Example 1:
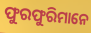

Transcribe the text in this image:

ଫୁରଫୁରିମାନେ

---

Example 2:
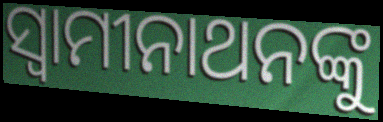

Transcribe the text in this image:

ସ୍ୱାମୀନାଥନଙ୍କୁ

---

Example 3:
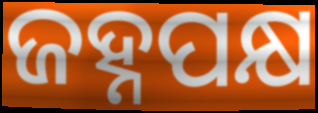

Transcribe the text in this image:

ଜହ୍ନପକ୍ଷ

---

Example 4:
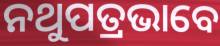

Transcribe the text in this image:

ନଥୁପତ୍ରଭାବେ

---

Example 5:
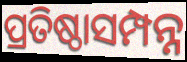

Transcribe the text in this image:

ପ୍ରତିଷ୍ଠାସମ୍ପନ୍ନ